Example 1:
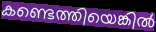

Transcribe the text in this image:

കണ്ടെത്തിയെങ്കിൽ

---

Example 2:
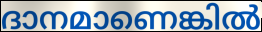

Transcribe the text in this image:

ദാനമാണെങ്കിൽ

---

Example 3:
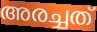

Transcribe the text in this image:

അരച്ചത്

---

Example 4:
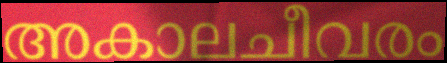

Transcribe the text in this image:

അകാലചീവരം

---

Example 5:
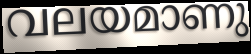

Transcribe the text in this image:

വലയമാണു